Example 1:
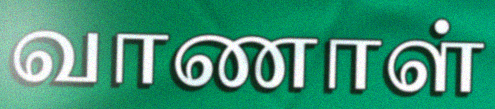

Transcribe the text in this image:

வாணாள்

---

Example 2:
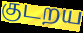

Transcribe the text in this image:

குடறய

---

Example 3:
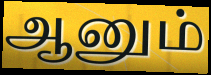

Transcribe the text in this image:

ஆனும்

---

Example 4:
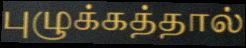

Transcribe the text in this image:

புழுக்கத்தால்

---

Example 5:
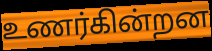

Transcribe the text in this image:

உணர்கின்றன